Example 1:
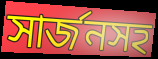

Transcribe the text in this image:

সার্জনসহ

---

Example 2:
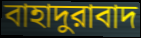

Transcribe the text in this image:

বাহাদুরাবাদ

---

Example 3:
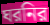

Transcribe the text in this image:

ঘরনির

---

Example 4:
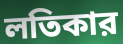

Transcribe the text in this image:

লতিকার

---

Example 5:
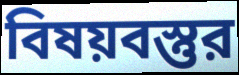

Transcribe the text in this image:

বিষয়বস্তুর